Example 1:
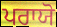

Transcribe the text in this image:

ਪਰਾਯੋ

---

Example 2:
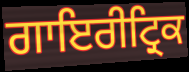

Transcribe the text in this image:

ਗਾਇਰੀਟ੍ਰਿਕ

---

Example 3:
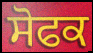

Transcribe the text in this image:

ਸੋਫਕ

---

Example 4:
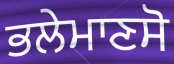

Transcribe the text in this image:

ਭਲੇਮਾਣਸੋ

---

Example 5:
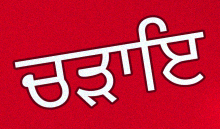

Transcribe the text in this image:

ਚੜਾਇ